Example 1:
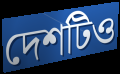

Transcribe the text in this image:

দেশটিও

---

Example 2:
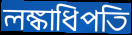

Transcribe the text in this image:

লঙ্কাধিপতি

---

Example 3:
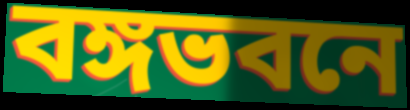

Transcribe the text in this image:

বঙ্গভবনে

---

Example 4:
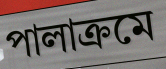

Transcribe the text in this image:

পালাক্রমে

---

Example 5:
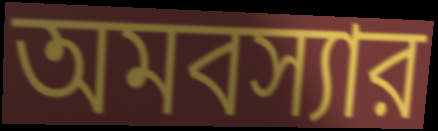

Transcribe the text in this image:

অমবস্যার